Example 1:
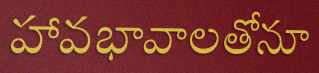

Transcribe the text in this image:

హావభావాలతోనూ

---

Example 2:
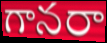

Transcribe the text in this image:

గానరా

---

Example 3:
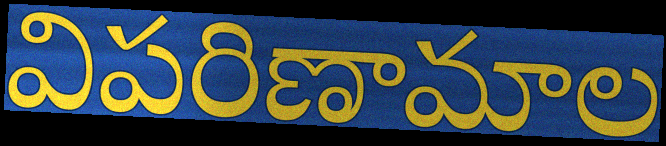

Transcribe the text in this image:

విపరిణామాల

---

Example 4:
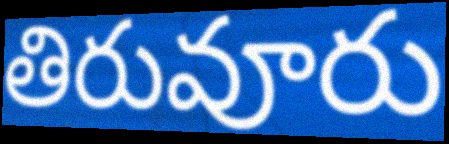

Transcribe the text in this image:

తిరువూరు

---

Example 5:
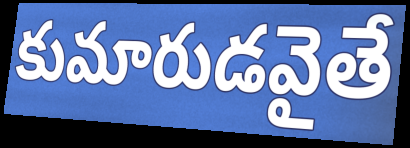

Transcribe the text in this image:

కుమారుడవైతే